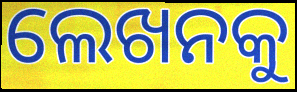
ଲେଖନକୁ